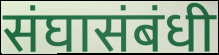
संघासंबंधी